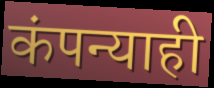
कंपन्याही